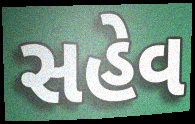
સહેવ